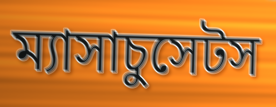
ম্যাসাচুসেটস